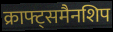
क्राफ्ट्समैनशिप